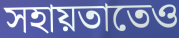
সহায়তাতেও